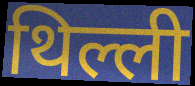
थिल्ली